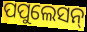
ପପୁଲେସନ୍